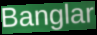
Banglar